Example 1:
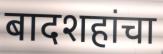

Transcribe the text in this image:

बादशहांचा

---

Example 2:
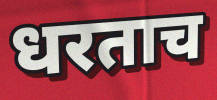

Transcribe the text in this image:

धरताच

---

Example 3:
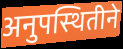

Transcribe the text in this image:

अनुपस्थितीने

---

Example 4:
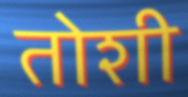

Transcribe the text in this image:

तोशी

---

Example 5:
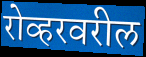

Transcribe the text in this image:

रोव्हरवरील